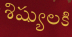
శిష్యులకి